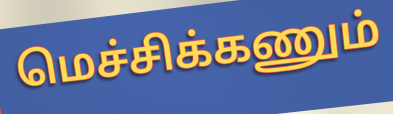
மெச்சிக்கணும்